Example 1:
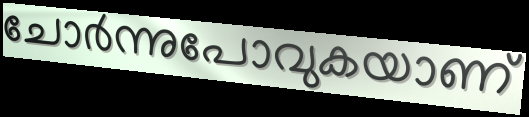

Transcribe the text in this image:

ചോർന്നുപോവുകയാണ്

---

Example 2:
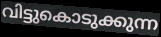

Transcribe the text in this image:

വിട്ടുകൊടുക്കുന്ന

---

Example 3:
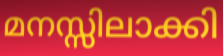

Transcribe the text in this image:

മനസ്സിലാക്കി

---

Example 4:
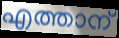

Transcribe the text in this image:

എത്താന്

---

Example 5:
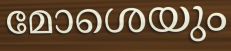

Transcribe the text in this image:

മോശെയും